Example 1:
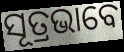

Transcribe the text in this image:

ସୂତ୍ରଭାବେ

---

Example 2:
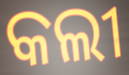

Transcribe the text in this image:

କଲୀ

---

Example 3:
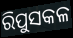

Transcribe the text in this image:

ରିପୁସକଳ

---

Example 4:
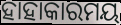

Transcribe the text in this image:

ହାହାକାରମୟ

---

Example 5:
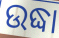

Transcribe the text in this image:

ଉଦ୍ଧା